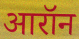
आरॉन